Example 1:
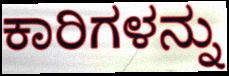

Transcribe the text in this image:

ಕಾರಿಗಳನ್ನು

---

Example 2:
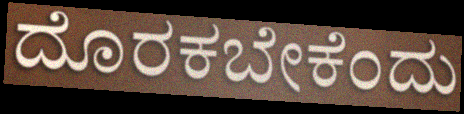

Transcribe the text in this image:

ದೊರಕಬೇಕೆಂದು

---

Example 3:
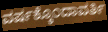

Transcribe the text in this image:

ವರ್ಷಕ್ಕೊಂದಾವರ್ತಿ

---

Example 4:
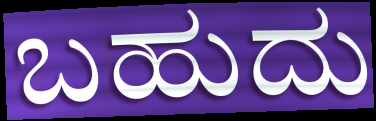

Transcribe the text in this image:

ಬಹುದು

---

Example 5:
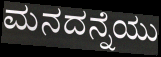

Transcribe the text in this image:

ಮನದನ್ನೆಯು